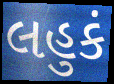
લહુકં